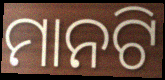
ମାନଟି